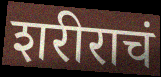
शरीराचं